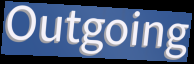
Outgoing